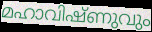
മഹാവിഷ്ണുവും